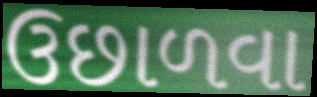
ઉછાળવા